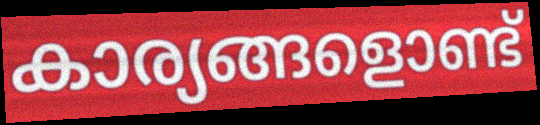
കാര്യങ്ങളൊണ്ട്